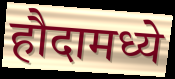
हौदामध्ये